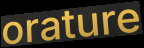
orature